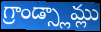
గ్రాండ్స్లామ్లు